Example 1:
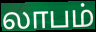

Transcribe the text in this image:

லாபம்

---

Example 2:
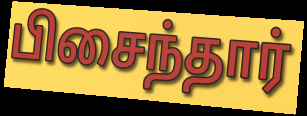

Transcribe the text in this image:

பிசைந்தார்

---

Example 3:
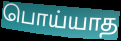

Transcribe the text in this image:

பொய்யாத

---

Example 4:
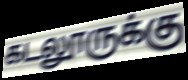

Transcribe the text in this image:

கடலூருக்கு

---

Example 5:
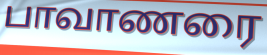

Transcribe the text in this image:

பாவாணரை